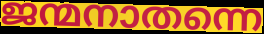
ജന്മനാതന്നെ